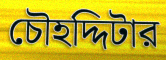
চৌহদ্দিটার